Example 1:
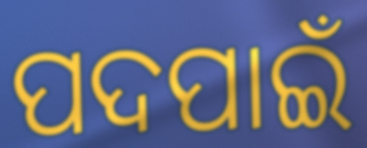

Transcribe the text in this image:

ପଦପାଇଁ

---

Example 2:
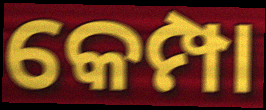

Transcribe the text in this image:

କେମ୍ପା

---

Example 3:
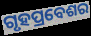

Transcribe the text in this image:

ଗୃହପ୍ରବେଶର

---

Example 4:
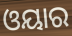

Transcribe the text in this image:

ଓୟାର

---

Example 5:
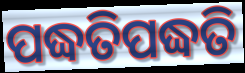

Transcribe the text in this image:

ପଦ୍ଧତିପଦ୍ଧତି